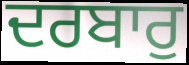
ਦਰਬਾਰੁ